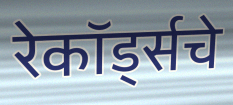
रेकॉर्ड्सचे